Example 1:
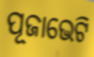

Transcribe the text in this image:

ପୂଜାଭେଟି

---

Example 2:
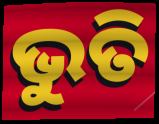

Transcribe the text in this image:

ଭୁତି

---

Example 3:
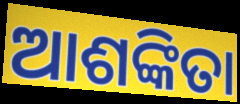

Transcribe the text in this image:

ଆଶଙ୍କିତା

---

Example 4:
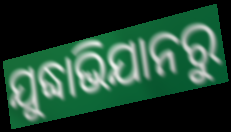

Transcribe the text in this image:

ଯୁଦ୍ଧାଭିଯାନରୁ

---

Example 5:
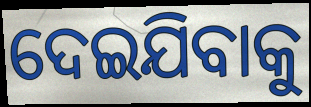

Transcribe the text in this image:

ଦେଇଯିବାକୁ